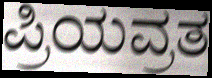
ಪ್ರಿಯವ್ರತ